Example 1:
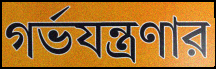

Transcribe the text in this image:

গর্ভযন্ত্রণার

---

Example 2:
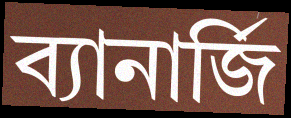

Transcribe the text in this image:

ব্যানার্জি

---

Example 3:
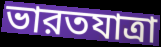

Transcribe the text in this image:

ভারতযাত্রা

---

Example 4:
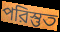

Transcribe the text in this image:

পরিস্তুত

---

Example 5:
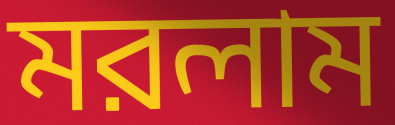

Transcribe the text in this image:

মরলাম